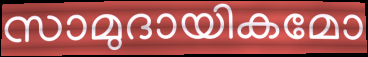
സാമുദായികമോ